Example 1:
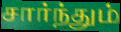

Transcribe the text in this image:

சார்ந்தும்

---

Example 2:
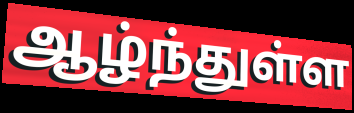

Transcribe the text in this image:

ஆழ்ந்துள்ள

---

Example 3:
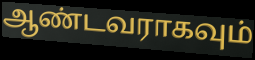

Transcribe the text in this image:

ஆண்டவராகவும்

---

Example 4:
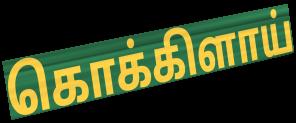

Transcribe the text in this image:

கொக்கிளாய்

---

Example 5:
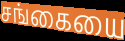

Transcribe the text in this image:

சங்கையை